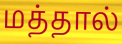
மத்தால்